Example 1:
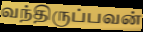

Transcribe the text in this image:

வந்திருப்பவன்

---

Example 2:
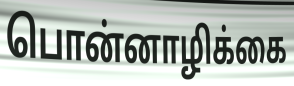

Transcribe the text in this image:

பொன்னாழிக்கை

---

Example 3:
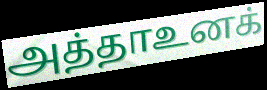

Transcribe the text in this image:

அத்தாஉனக்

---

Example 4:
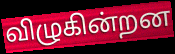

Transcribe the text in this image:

விழுகின்றன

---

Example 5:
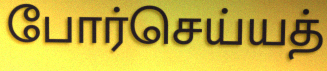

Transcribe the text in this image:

போர்செய்யத்